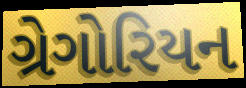
ગ્રેગોરિયન